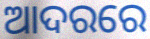
ଆଦରରେ